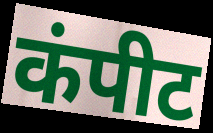
कंपीट